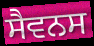
ਸੈਵਨਸ